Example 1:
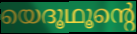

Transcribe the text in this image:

യെദൂഥൂന്റെ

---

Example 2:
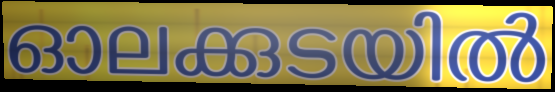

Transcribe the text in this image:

ഓലക്കുടയിൽ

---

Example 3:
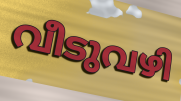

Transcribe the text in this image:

വീടുവഴി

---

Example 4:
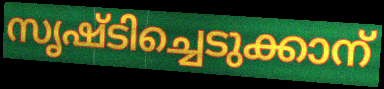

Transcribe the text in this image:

സൃഷ്ടിച്ചെടുക്കാന്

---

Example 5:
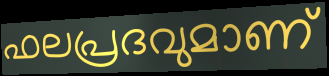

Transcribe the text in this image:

ഫലപ്രദവുമാണ്